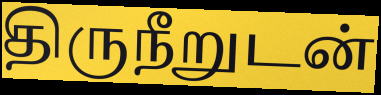
திருநீறுடன்